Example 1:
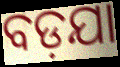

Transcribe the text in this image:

ବଡ଼ଯା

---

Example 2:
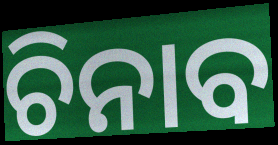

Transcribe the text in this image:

ଚିନାବ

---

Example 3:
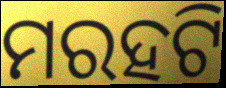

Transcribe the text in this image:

ମରହଟି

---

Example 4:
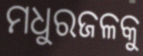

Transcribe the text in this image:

ମଧୁରଜଳକୁ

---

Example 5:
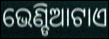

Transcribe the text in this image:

ଭେଣ୍ଡିଆଟାଏ